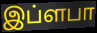
இப்ளபா